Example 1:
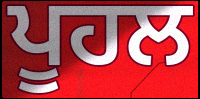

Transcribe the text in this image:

ਪੂਹਲ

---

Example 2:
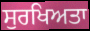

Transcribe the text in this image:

ਸੁਰਖਿਅਤਾ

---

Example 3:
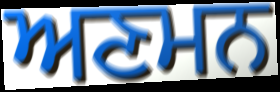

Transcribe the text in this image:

ਅਣਮਨ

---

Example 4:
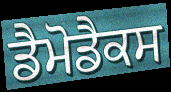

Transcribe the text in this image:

ਡੈਮੋਡੈਕਸ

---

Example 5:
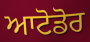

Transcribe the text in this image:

ਆਟੋਡੋਰ